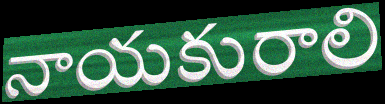
నాయకురాలి